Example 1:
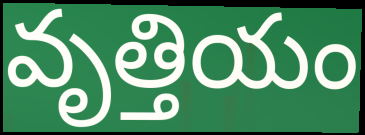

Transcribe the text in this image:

వృత్తియం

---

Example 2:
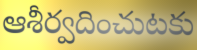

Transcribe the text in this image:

ఆశీర్వదించుటకు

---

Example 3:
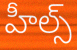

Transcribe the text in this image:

హీల్స్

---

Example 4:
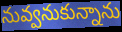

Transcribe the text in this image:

నువ్వనుకున్నాను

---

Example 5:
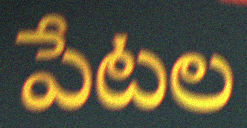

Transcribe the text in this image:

పేటల